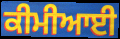
ਕੀਮੀਆਈ